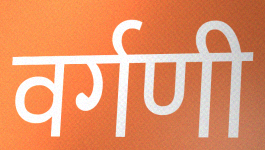
वर्गणी